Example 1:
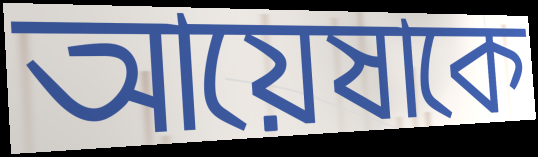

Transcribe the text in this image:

আয়েষাকে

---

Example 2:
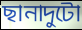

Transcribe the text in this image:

ছানাদুটো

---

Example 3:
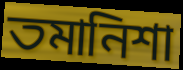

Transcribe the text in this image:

তমানিশা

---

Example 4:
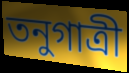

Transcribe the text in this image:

তনুগাত্রী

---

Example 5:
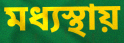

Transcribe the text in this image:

মধ্যস্থায়